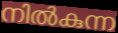
നിൽകുന്ന